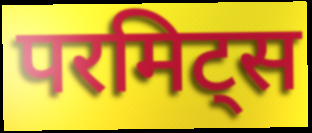
परमिट्स